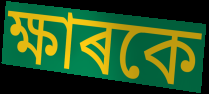
ক্ষাৰকে